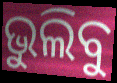
ଭୁଲିବୁ